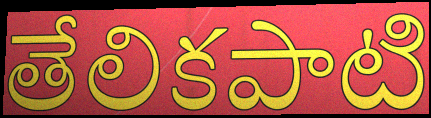
తేలికపాటి